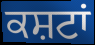
ਕਸ਼ਟਾਂ